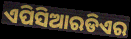
ଏପିସିଆରଡିଏର